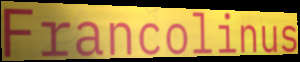
Francolinus